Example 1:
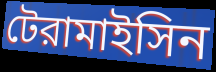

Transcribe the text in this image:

টেরামাইসিন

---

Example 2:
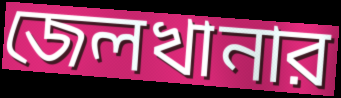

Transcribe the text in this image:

জেলখানার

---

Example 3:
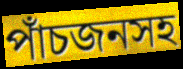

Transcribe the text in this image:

পাঁচজনসহ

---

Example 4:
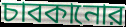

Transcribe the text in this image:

চাবকানোর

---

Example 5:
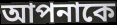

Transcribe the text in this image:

আপনাকে